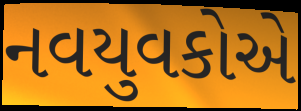
નવયુવકોએ